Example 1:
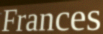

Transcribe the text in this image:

Frances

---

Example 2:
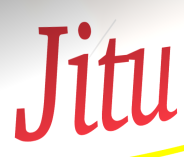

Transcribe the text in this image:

Jitu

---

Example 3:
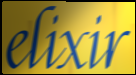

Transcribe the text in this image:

elixir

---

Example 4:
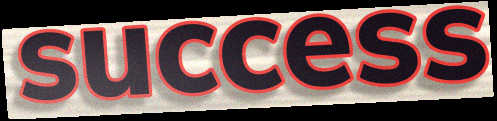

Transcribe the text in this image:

success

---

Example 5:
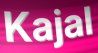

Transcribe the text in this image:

Kajal